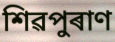
শিৱপুৰাণ